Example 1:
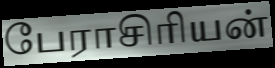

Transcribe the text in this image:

பேராசிரியன்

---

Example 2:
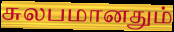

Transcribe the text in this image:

சுலபமானதும்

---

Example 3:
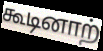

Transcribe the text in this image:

கூடினாற்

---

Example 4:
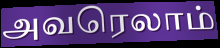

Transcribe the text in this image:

அவரெலாம்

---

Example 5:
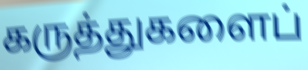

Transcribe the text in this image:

கருத்துகளைப்